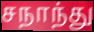
சநாந்து